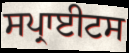
ਸਪ੍ਰਾਈਟਸ